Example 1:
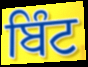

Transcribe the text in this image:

ਬਿੰਟ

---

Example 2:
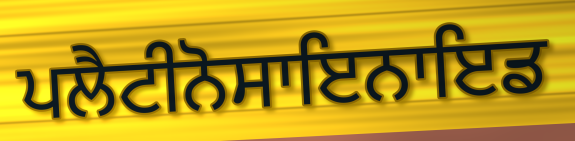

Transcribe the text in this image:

ਪਲੈਟੀਨੋਸਾਇਨਾਇਡ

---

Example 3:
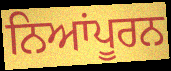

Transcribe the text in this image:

ਨਿਆਂਪੂਰਨ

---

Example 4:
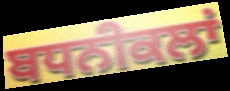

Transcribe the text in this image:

ਬਧਨੀਕਲਾਂ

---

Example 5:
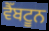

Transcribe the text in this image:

ਵੈੱਬਟੂਨ